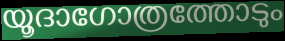
യൂദാഗോത്രത്തോടും